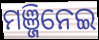
ମଞ୍ଜିନେଇ